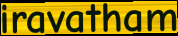
iravatham